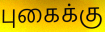
புகைக்கு